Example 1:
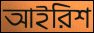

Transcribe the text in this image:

আইরিশ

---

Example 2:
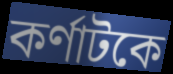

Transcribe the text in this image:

কর্ণাটকে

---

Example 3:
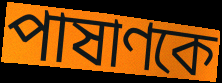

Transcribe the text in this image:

পাষাণকে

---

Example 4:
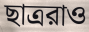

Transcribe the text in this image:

ছাত্ররাও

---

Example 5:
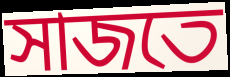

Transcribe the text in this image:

সাজতে